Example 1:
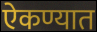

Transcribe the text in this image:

ऐकण्यात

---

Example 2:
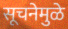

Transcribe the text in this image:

सूचनेमुळे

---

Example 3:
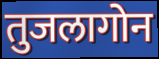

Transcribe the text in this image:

तुजलागोन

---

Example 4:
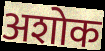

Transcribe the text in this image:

अशोक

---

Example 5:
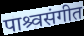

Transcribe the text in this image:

पाश्र्वसंगीत